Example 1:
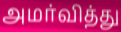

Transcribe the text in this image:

அமர்வித்து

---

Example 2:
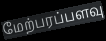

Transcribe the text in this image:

மேற்பரப்பளவு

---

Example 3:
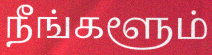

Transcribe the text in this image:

நீங்களூம்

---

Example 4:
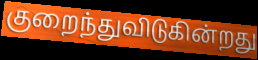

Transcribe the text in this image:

குறைந்துவிடுகின்றது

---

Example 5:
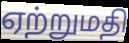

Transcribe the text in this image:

ஏற்றுமதி